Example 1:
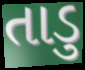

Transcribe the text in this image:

તાડુ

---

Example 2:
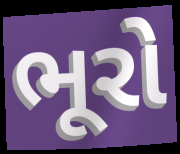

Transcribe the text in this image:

ભૂરો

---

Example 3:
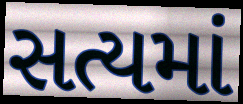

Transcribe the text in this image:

સત્યમાં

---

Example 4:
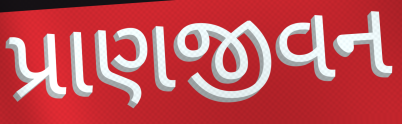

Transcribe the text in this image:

પ્રાણજીવન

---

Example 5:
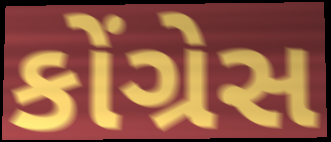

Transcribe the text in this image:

કોંગ્રેસ